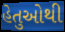
હેતુઓથી